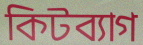
কিটব্যাগ